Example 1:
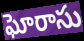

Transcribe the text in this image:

ఘోరాసు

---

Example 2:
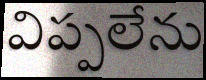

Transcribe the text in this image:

విప్పలేను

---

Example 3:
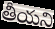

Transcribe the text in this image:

తీయని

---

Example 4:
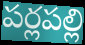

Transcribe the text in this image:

పర్లపల్లి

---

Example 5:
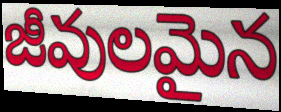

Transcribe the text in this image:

జీవులమైన